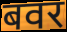
बवर